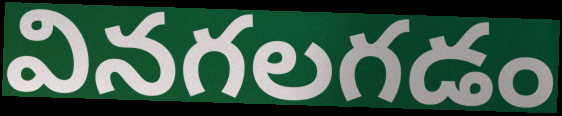
వినగలగడం